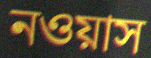
নওয়াস